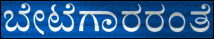
ಬೇಟೆಗಾರರಂತೆ